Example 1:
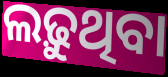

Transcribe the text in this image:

ଲଢ଼ୁଥିବା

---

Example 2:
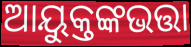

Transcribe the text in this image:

ଆୟୁକ୍ତଙ୍କଭତ୍ତା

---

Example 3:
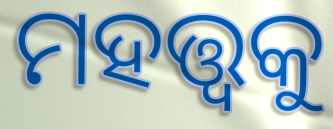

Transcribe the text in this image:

ମହତ୍ତ୍ଵକୁ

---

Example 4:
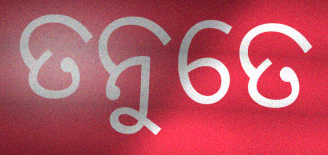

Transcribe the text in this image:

ତନୁତେ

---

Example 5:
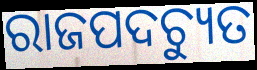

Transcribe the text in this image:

ରାଜପଦଚ୍ୟୁତ